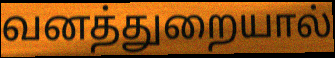
வனத்துறையால்